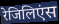
रेजिलिएंस